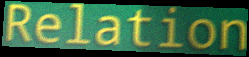
Relation